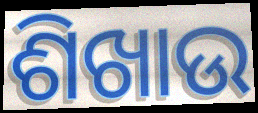
ଶିଖାଉ